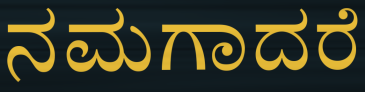
ನಮಗಾದರೆ